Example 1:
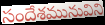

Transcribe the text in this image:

సందేశమునువిని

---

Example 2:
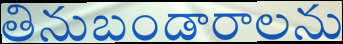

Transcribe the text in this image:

తినుబండారాలను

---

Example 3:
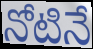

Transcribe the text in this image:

నోటినే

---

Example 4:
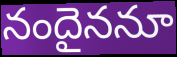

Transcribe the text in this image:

నందైననూ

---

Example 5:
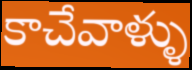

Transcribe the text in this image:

కాచేవాళ్ళు